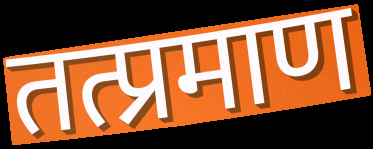
तत्प्रमाण